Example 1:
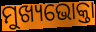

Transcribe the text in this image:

ମୁଖ୍ୟଭୋକ୍ତା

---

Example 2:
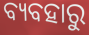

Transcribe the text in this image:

ବ୍ୟବହାରୁ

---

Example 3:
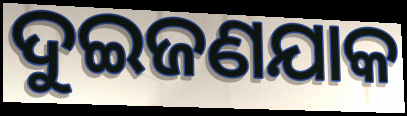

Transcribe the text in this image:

ଦୁଇଜଣଯାକ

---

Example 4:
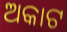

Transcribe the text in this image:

ଅକାଟ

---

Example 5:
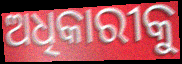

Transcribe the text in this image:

ଅଧିକାରୀକୁ